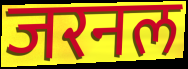
जरनल